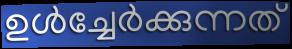
ഉൾച്ചേർക്കുന്നത്